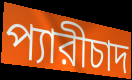
প্যারীচাদ